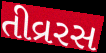
તીવ્રરસ